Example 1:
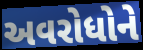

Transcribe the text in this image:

અવરોધોને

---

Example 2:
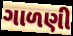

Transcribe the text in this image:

ગાળણી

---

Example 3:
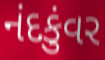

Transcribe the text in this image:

નંદકુંવર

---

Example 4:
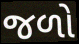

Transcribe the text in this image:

જળો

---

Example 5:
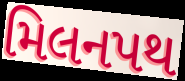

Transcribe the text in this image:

મિલનપથ